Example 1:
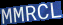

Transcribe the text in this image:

MMRCL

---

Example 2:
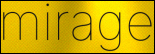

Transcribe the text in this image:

mirage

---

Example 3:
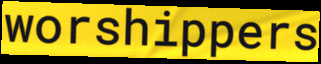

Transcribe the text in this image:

worshippers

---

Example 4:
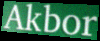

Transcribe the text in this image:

Akbor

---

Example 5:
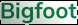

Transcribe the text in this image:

Bigfoot